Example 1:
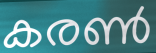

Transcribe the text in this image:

കരൺ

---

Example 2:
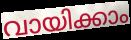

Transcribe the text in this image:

വായിക്കാം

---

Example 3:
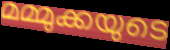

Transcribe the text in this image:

മമ്മുക്കയുടെ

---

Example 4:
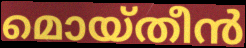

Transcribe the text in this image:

മൊയ്തീൻ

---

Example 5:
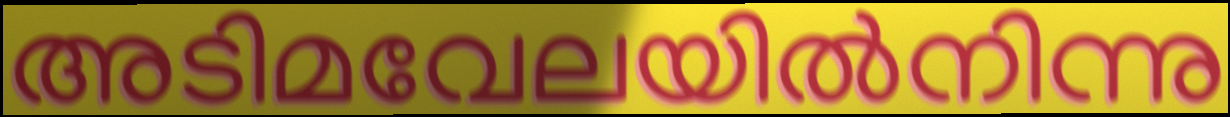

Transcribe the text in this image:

അടിമവേലയിൽനിന്നു